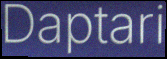
Daptari